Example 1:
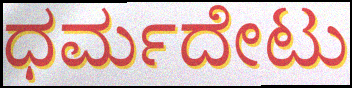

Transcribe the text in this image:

ಧರ್ಮದೇಟು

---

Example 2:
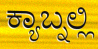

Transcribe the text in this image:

ಕ್ಯಾಬ್ನಲ್ಲಿ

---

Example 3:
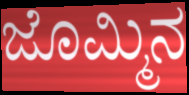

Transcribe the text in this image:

ಜೊಮ್ಮಿನ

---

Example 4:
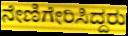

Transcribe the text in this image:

ನೇಣಿಗೇರಿಸಿದ್ದರು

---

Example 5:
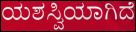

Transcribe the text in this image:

ಯಶಸ್ವಿಯಾಗಿದೆ